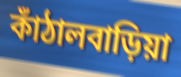
কাঁঠালবাড়িয়া